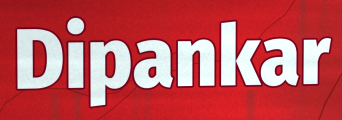
Dipankar